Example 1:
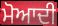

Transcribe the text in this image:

ਮੋਆਦੀ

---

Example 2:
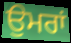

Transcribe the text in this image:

ਉਮਰਾਂ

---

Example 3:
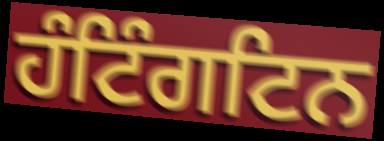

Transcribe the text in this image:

ਹੰਟਿੰਗਟਿਨ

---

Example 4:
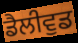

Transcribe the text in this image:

ਡੈਲੀਵੁਡ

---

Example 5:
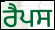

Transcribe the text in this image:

ਰੈਪਸ